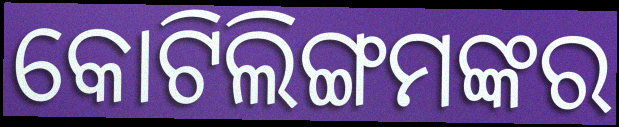
କୋଟିଲିଙ୍ଗମଙ୍କର